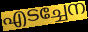
എടച്ചേന